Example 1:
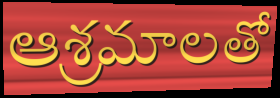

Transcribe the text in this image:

ఆశ్రమాలతో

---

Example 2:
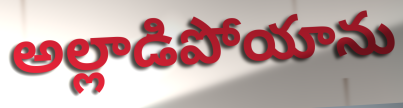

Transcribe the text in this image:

అల్లాడిపోయాను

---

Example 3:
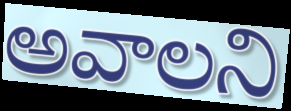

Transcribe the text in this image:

అవాలని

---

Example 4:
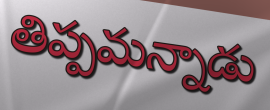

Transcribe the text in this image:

తిప్పమన్నాడు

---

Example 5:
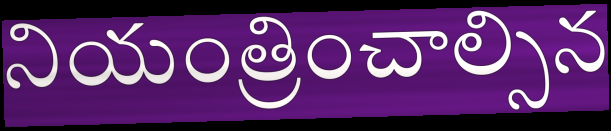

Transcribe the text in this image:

నియంత్రించాల్సిన